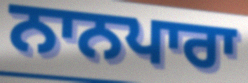
ਨਾਨਪਾਰਾ